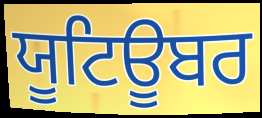
ਯੂਟਿਊਬਰ